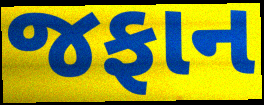
જફાન